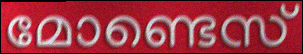
മോണ്ടെസ്